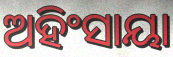
ଅହିଂସାୟା